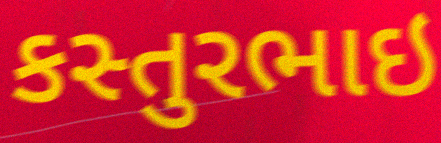
કસ્તુરભાઇ